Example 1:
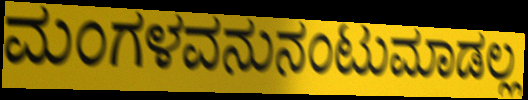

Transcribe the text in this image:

ಮಂಗಳವನುನಂಟುಮಾಡಲ್ಲ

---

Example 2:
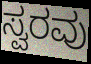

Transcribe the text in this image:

ಸ್ವರವು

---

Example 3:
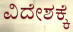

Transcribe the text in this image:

ವಿದೇಶಕ್ಕೆ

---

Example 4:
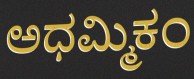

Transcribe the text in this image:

ಅಧಮ್ಮಿಕಂ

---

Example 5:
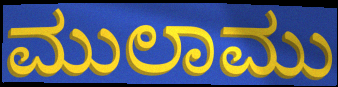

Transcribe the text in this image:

ಮುಲಾಮು